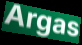
Argas